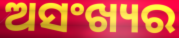
ଅସଂଖ୍ୟର